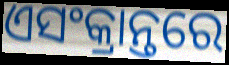
ଏସଂକ୍ରାନ୍ତରେ